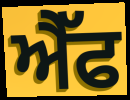
ਐੈੱਫ